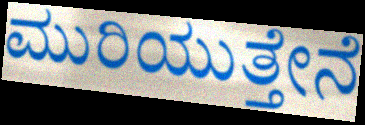
ಮುರಿಯುತ್ತೇನೆ